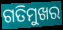
ଗତିମୁଖର